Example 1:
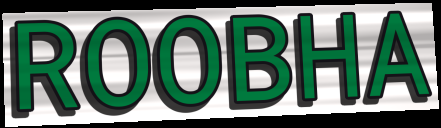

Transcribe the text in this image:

ROOBHA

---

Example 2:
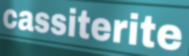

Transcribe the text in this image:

cassiterite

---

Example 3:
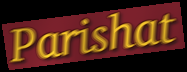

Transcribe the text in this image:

Parishat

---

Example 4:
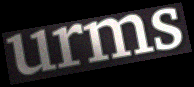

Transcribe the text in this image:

urms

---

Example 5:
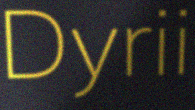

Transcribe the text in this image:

Dyrii